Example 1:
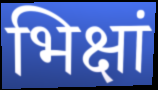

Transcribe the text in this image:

भिक्षां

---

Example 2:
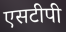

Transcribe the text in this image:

एसटीपी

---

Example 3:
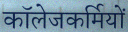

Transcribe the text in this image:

कॉलेजकर्मियों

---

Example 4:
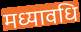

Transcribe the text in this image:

मध्यावधि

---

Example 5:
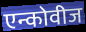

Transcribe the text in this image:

एन्कोवीज